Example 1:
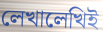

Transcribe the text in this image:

লেখালেখিই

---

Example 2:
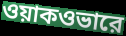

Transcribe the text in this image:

ওয়াকওভারে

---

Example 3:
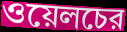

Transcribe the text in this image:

ওয়েলচের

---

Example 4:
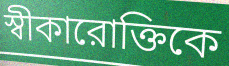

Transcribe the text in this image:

স্বীকারোক্তিকে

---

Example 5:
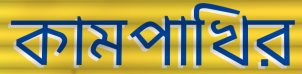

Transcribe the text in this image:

কামপাখির